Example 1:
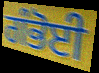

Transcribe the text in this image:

ਗੰਭੋਈ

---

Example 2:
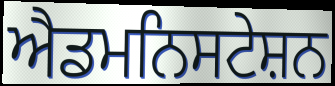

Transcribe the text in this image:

ਐਡਮਨਿਸਟੇਸ਼ਨ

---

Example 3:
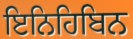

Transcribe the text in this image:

ਇਨਿਹਿਬਿਨ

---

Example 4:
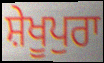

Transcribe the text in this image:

ਸ਼ੇਖੂਪੁਰਾ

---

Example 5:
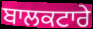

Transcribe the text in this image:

ਬਾਲਕਟਾਰੇ